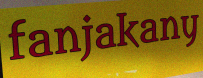
fanjakany